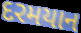
દરમયાન